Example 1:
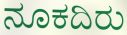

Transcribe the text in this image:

ನೂಕದಿರು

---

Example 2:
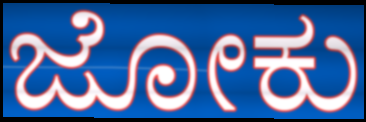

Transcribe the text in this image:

ಜೋಕು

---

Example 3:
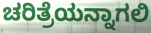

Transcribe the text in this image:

ಚರಿತ್ರೆಯನ್ನಾಗಲಿ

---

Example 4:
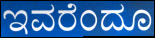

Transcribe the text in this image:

ಇವರೆಂದೂ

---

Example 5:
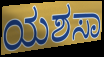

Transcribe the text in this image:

ಯಶಸಾ